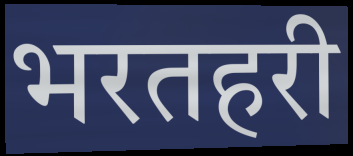
भरतहरी